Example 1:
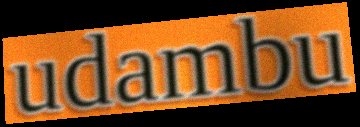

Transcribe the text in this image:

udambu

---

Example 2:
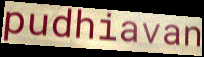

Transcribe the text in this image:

pudhiavan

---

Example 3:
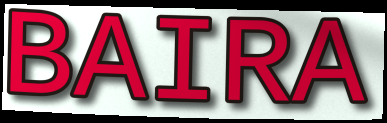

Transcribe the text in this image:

BAIRA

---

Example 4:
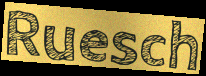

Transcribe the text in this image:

Ruesch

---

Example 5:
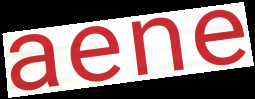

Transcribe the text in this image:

aene